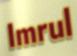
Imrul